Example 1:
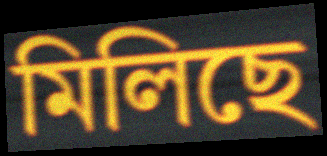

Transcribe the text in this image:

মিলিছে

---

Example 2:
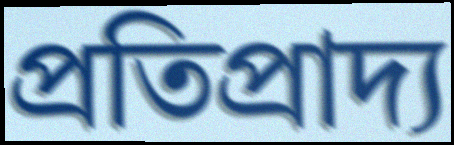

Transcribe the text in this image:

প্ৰতিপ্ৰাদ্য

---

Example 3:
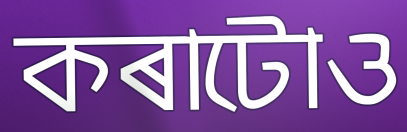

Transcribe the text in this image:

কৰাটোও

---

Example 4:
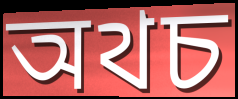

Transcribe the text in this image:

অথচ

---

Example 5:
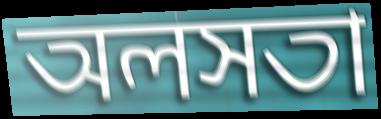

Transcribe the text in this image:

অলসতা